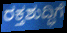
ರಕ್ತಶುದ್ಧಿಗೆ